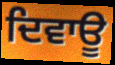
ਦਿਵਾਊ